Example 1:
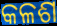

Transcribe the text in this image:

କଳଶ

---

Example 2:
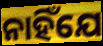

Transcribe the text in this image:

ନାହିଁଯେ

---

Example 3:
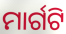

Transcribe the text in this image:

ମାର୍ଗଟି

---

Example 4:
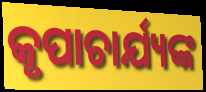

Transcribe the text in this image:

କୃପାଚାର୍ଯ୍ୟଙ୍କ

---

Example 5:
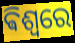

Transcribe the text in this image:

ଵିଶ୍ୱରେ